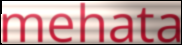
mehata